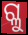
ଗ୍ଳୁ